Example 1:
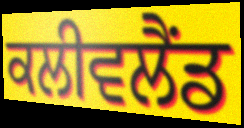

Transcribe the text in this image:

ਕਲੀਵਲੈਂਡ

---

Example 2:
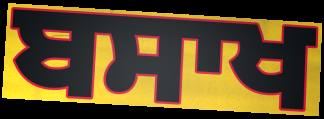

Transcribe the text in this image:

ਬਸਾਖ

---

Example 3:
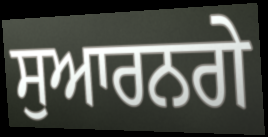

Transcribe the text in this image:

ਸੁਆਰਨਗੇ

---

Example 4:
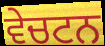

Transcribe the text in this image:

ਵੇਚਟਨ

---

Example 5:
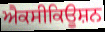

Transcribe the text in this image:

ਐਕਸੀਕਿਊਸ਼ਨ